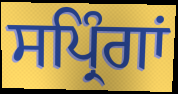
ਸਪ੍ਰਿੰਗਾਂ